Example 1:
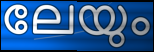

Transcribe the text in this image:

ലേയും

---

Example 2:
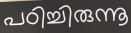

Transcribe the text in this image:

പഠിച്ചിരുന്നൂ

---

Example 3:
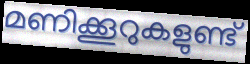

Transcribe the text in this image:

മണിക്കൂറുകളുണ്ട്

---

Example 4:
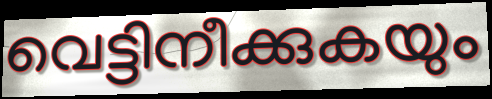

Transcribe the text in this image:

വെട്ടിനീക്കുകയും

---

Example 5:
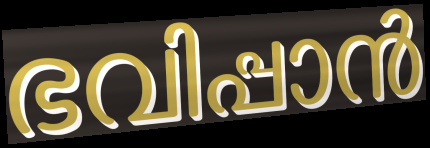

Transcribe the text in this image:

ഭവിപ്പാൻ